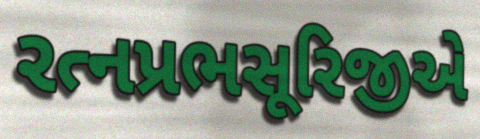
રત્નપ્રભસૂરિજીએ